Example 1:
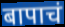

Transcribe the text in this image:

बापाचं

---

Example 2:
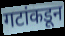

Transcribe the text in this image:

गटांकडून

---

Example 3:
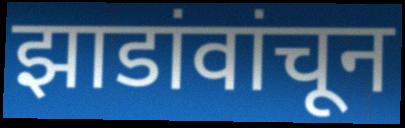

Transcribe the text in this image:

झाडांवांचून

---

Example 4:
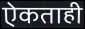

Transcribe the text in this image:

ऐकताही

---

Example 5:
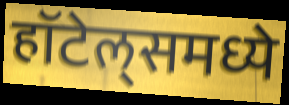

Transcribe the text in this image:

हॉटेल्समध्ये